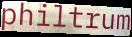
philtrum